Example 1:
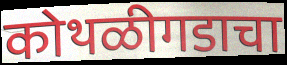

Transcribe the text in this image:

कोथळीगडाचा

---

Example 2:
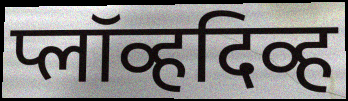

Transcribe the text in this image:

प्लॉव्हदिव्ह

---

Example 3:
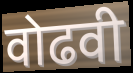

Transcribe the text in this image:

वोढवी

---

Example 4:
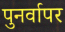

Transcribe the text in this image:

पुनर्वापर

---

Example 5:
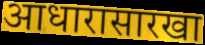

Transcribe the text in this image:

आधारासारखा